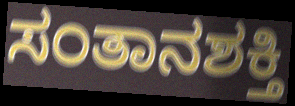
ಸಂತಾನಶಕ್ತಿ